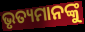
ଭୃତ୍ୟମାନଙ୍କୁ